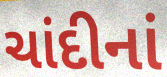
ચાંદીનાં